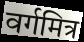
वर्गमित्र